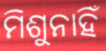
ମିଶୁନାହିଁ